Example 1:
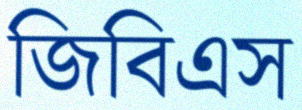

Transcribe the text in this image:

জিবিএস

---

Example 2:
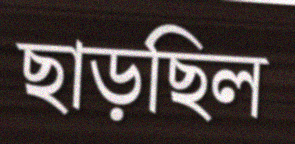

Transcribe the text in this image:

ছাড়ছিল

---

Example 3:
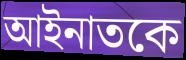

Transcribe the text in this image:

আইনাতকে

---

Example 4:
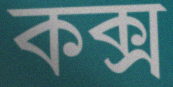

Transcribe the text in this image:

কক্স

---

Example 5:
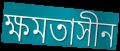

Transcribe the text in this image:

ক্ষমতাসীন